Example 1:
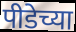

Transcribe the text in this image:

पीडेच्या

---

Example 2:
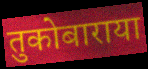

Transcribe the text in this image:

तुकोबाराया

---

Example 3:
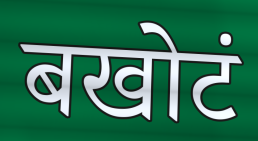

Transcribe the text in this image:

बखोटं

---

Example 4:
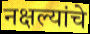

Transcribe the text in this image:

नक्षल्यांचे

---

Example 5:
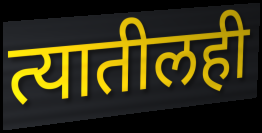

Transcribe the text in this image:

त्यातीलही